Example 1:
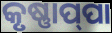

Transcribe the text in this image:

କୃଷ୍ଣାପ୍‌ପା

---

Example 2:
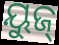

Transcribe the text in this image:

ୟୁଜ୍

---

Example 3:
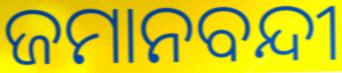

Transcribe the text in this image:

ଜମାନବନ୍ଦୀ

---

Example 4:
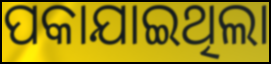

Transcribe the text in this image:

ପକାଯାଇଥିଲା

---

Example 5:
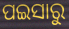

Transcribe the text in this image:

ପଇସାରୁ